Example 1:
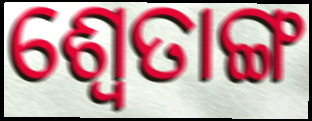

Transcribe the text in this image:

ଶ୍ୱେତାଙ୍ଗ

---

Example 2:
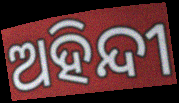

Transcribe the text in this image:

ଅହିନ୍ଦୀ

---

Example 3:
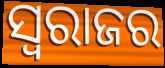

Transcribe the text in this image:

ସ୍ୱରାଜର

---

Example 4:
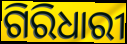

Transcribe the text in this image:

ଗିରିଧାରୀ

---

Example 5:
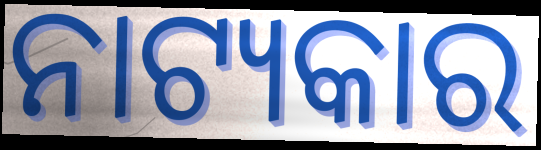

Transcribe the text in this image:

ନାଟ୍ୟକାର